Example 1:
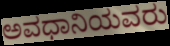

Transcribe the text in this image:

ಅವಧಾನಿಯವರು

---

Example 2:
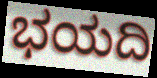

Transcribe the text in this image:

ಭಯದಿ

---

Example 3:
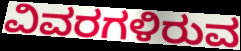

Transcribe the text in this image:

ವಿವರಗಳಿರುವ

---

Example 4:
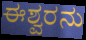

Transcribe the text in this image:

ಈಶ್ವರನು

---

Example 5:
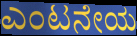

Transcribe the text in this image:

ಎಂಟನೇಯ